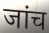
जांच